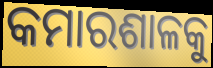
କମାରଶାଳକୁ